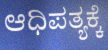
ಆಧಿಪತ್ಯಕ್ಕೆ